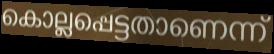
കൊല്ലപ്പെട്ടതാണെന്ന്